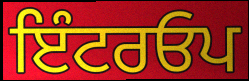
ਇੰਟਰਓਪ